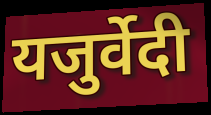
यजुर्वेदी